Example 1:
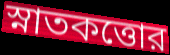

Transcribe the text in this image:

স্নাতকত্তোর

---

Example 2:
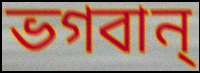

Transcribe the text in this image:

ভগবান্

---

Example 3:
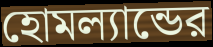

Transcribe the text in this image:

হোমল্যান্ডের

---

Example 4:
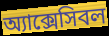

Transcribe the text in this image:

অ্যাক্সেসিবল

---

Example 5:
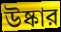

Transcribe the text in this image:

উষ্কার